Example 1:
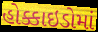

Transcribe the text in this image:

હોક્કાઇડોમાં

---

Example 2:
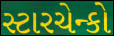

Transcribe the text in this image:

સ્ટારચેન્કો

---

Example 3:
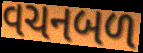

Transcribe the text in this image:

વચનબળ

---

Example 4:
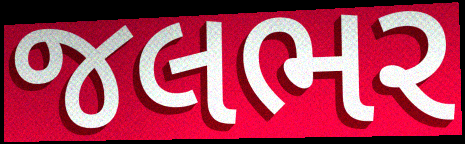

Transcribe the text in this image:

જલભર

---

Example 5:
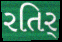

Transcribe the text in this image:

રતિર્